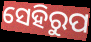
ସେହିରୁପ